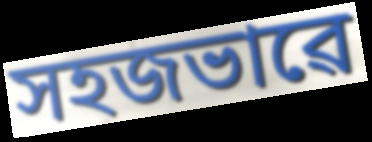
সহজভাৱে